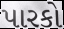
પારકો